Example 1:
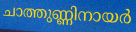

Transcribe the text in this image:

ചാത്തുണ്ണിനായർ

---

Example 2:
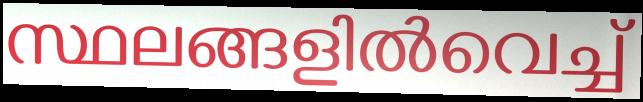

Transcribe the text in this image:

സ്ഥലങ്ങളിൽവെച്ച്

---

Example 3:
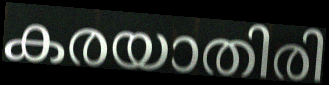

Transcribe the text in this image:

കരയാതിരി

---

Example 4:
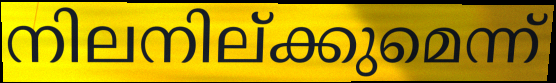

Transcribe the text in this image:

നിലനില്ക്കുമെന്ന്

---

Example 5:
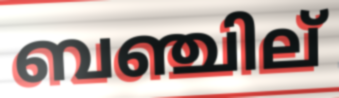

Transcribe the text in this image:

ബഞ്ചില്